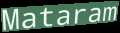
Mataram